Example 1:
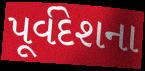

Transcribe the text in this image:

પૂર્વદેશના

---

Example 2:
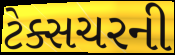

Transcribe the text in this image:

ટેક્સચરની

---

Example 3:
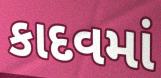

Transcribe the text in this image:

કાદવમાં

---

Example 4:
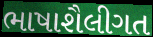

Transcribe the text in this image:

ભાષાશૈલીગત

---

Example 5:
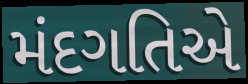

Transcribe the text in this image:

મંદગતિએ